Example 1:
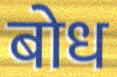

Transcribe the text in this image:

बोध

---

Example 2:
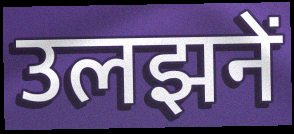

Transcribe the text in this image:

उलझनें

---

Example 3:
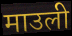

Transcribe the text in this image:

माउली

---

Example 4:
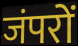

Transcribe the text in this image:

जंपरों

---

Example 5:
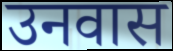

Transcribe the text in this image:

उनवास